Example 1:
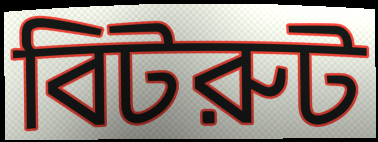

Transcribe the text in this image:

বিটরুট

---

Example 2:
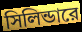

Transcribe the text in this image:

সিলিন্ডারে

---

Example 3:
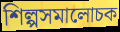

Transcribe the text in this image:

শিল্পসমালোচক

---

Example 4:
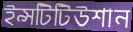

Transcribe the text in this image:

ইন্সটিটিউশান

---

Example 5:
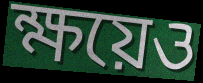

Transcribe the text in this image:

ক্ষয়েও